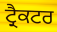
ਟ੍ਰੈਕਟਰ